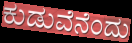
ಕುಡುವೆನೆಂದು